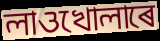
লাওখোলাৰে